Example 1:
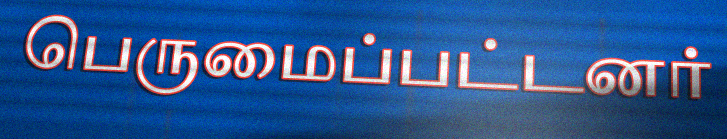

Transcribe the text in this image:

பெருமைப்பட்டனர்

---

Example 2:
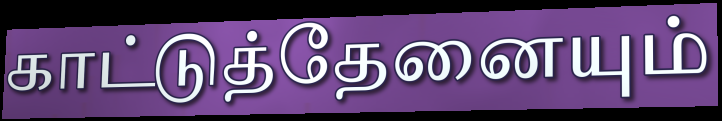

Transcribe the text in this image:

காட்டுத்தேனையும்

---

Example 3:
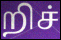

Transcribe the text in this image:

றிச்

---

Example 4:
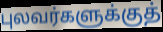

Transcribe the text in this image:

புலவர்களுக்குத்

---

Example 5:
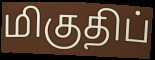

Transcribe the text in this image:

மிகுதிப்